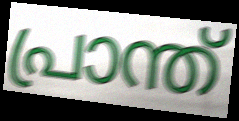
പ്രാന്ത്